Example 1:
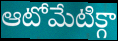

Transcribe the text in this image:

ఆటోమేటిక్గా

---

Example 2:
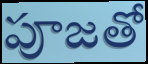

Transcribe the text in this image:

పూజతో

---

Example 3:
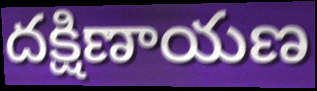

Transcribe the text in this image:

దక్షిణాయణ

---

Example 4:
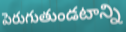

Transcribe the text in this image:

పెరుగుతుండటాన్ని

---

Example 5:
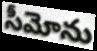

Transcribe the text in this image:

సీమోను